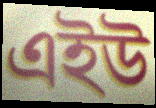
এইউ